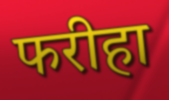
फरीहा